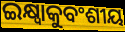
ଇକ୍ଷ୍ୱାକୁବଂଶୀୟ